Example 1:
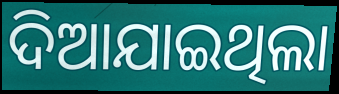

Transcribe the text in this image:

ଦିଆଯାଇଥିଲା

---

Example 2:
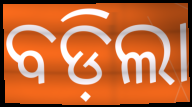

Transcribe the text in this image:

ବଡ଼ିଲା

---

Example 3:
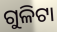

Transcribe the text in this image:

ଗୁଳିଟା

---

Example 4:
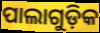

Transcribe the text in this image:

ପାଲାଗୁଡ଼ିକ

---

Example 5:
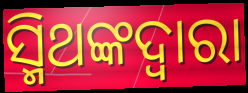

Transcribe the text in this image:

ସ୍ମିଥଙ୍କଦ୍ୱାରା